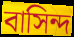
বাসিন্দ